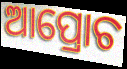
ଆପ୍ରୋଚ